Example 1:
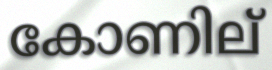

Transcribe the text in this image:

കോണില്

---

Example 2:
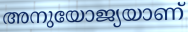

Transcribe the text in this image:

അനുയോജ്യയാണ്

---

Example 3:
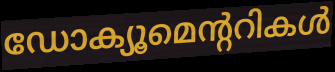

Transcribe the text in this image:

ഡോക്യൂമെന്ററികൾ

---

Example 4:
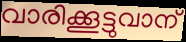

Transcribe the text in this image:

വാരിക്കൂട്ടുവാന്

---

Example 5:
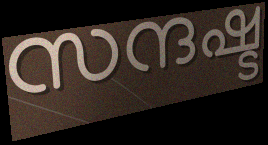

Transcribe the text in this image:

സന്ദഷ്ട